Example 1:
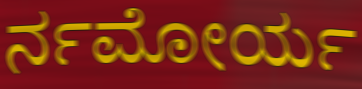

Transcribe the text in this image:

ರ್ನಮೋರ್ಯ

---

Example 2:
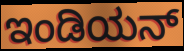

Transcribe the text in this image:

ಇಂಡಿಯನ್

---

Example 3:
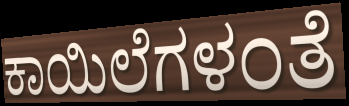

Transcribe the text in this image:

ಕಾಯಿಲೆಗಳಂತೆ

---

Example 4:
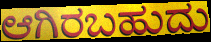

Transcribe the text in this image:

ಆಗಿರಬಹುದು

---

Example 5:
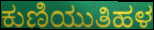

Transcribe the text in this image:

ಕುಣಿಯುತಿಹಳ